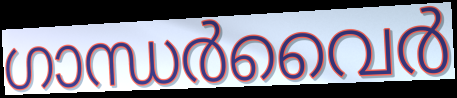
ഗാന്ധർവൈർ